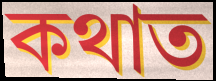
কথাত